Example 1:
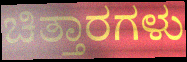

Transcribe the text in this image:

ಚಿತ್ತಾರಗಳು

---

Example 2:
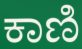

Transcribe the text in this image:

ಕಾಣಿ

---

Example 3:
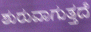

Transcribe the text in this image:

ಶುರುವಾಗುತ್ತದೆ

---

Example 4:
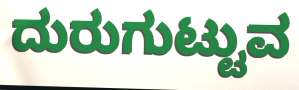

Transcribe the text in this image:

ದುರುಗುಟ್ಟುವ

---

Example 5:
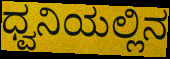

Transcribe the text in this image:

ಧ್ವನಿಯಲ್ಲಿನ